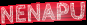
NENAPU